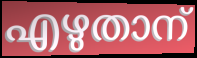
എഴുതാന്